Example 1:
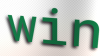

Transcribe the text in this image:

win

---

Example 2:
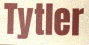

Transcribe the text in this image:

Tytler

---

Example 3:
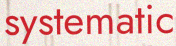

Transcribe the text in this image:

systematic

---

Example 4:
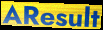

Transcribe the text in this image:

AResult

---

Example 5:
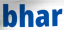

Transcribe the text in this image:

bhar